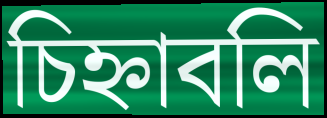
চিহ্নাবলি